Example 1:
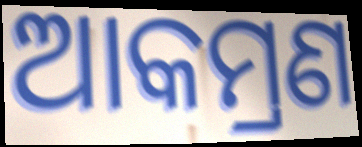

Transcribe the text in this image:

ଆକମ୍ରଣ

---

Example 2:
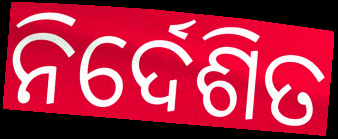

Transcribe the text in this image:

ନିର୍ଦେଶିତ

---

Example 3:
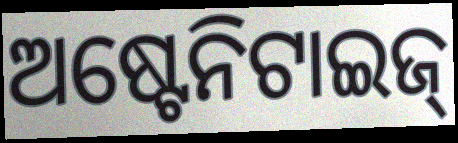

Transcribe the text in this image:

ଅଷ୍ଟେନିଟାଇଜ୍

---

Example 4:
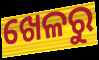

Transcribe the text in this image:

ଖେଳରୁ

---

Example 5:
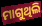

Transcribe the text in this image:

ମାଗୁଥିଲି